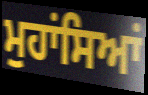
ਮੁਹਾਂਸਿਆਂ